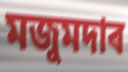
মজুমদাৰ